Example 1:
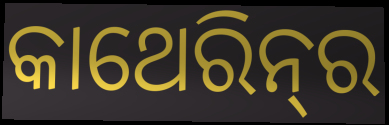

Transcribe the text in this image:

କାଥେରିନ୍‌ର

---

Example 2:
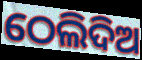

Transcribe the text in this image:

ଠେଲିଦିଅ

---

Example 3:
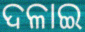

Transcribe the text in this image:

ଦଳାଇ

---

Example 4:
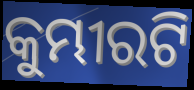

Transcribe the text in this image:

କୁମ୍ଭୀରଟି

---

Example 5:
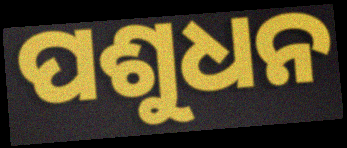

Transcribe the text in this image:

ପଶୁଧନ